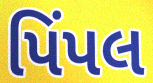
પિંપલ